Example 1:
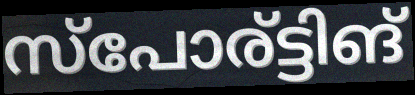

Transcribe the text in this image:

സ്പോര്ട്ടിങ്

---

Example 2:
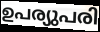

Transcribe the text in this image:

ഉപര്യുപരി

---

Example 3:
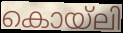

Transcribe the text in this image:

കൊയ്ലി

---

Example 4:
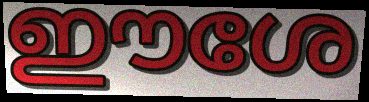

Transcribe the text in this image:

ഈശേ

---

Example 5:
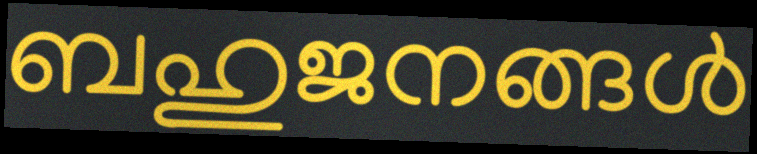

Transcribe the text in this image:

ബഹുജനങ്ങൾ